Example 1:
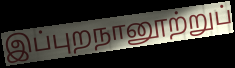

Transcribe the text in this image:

இப்புறநானூற்றுப்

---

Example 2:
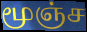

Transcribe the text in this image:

மூஞ்ச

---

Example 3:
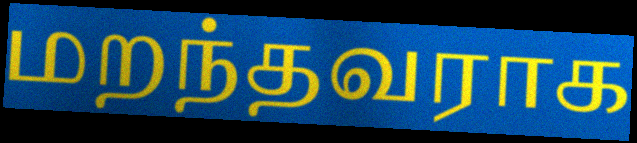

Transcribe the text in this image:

மறந்தவராக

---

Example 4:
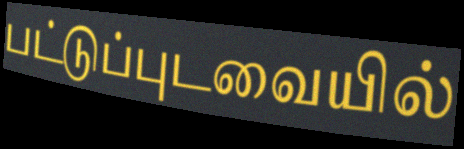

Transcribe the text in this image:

பட்டுப்புடவையில்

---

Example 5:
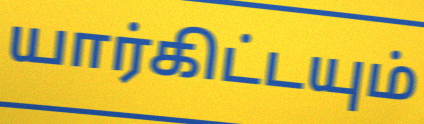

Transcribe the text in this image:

யார்கிட்டயும்